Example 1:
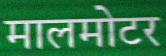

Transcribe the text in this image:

मालमोटर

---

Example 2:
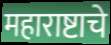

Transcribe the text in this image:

महाराष्टाचे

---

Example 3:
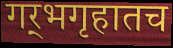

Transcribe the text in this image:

गर्भगृहातच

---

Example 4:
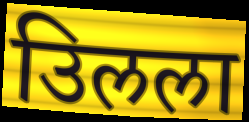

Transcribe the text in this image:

उिलला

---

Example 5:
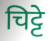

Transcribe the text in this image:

चिट्टे